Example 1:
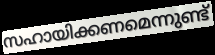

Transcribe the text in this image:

സഹായിക്കണമെന്നുണ്ട്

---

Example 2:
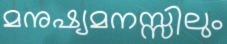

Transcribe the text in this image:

മനുഷ്യമനസ്സിലും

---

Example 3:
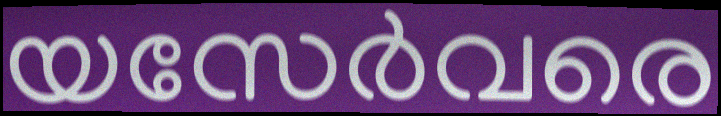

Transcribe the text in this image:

യസേർവരെ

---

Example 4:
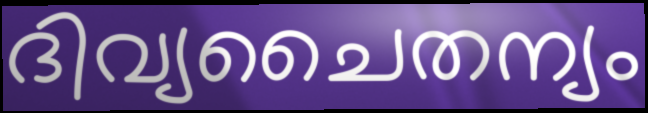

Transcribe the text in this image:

ദിവ്യചൈതന്യം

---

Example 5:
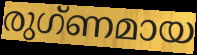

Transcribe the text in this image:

രുഗ്ണമായ